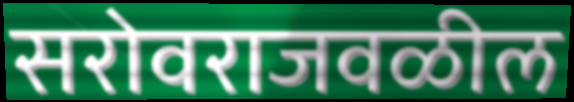
सरोवराजवळील